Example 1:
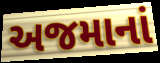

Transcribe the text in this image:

અજમાનાં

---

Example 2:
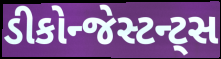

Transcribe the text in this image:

ડીકોન્જેસ્ટન્ટ્સ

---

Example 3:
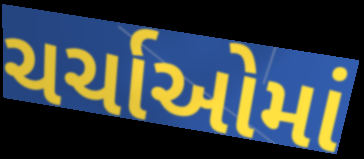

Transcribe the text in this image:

ચર્ચાઓમાં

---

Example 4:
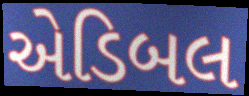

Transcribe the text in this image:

એડિબલ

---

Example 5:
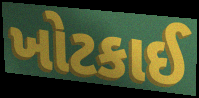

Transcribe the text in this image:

ખોટકાઈ